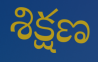
శిక్షణ